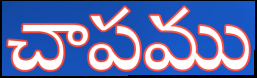
చాపము